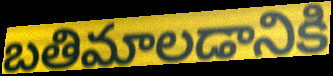
బతిమాలడానికి